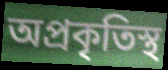
অপ্রকৃতিস্থ